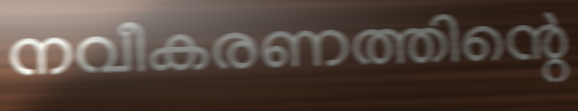
നവീകരണത്തിന്റെ